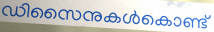
ഡിസൈനുകൾകൊണ്ട്